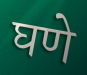
घणे